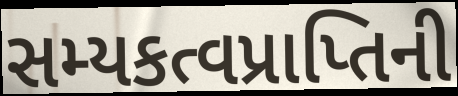
સમ્યકત્વપ્રાપ્તિની